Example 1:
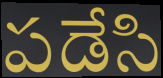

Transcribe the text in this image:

పడేసి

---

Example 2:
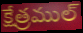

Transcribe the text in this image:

క్షేత్రముల్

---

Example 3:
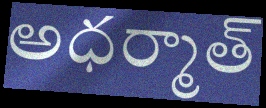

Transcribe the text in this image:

అధర్మాత్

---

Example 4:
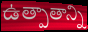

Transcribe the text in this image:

ఉత్పాతాన్ని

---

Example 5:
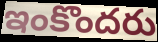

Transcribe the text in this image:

ఇంకొందరు